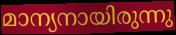
മാന്യനായിരുന്നു